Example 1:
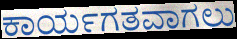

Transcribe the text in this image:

ಕಾರ್ಯಗತವಾಗಲು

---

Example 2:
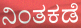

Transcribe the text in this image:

ನಿಂತಕಡೆ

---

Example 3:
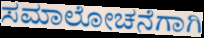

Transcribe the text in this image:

ಸಮಾಲೋಚನೆಗಾಗಿ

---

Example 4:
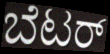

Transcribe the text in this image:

ಬೆಟರ್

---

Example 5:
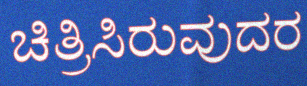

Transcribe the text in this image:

ಚಿತ್ರಿಸಿರುವುದರ